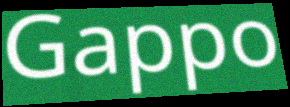
Gappo